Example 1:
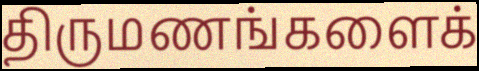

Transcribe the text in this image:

திருமணங்களைக்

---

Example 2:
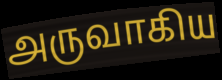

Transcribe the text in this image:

அருவாகிய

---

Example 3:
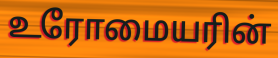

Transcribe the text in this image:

உரோமையரின்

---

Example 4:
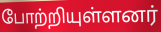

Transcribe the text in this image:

போற்றியுள்ளனர்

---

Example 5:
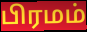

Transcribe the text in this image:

பிரமம்